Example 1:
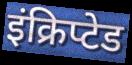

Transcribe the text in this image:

इंक्रिप्टेड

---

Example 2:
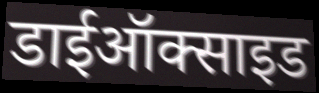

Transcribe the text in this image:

डाईऑक्साइड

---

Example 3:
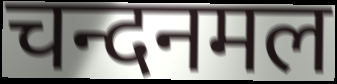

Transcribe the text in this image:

चन्दनमल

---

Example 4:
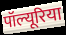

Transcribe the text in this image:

पॉल्यूरिया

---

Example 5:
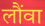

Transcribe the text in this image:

लौंवा